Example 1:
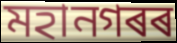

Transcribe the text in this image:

মহানগৰৰ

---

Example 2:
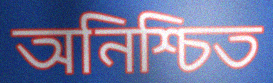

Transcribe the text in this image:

অনিশ্চিত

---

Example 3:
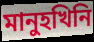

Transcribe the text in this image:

মানুহখিনি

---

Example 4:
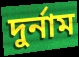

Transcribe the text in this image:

দুৰ্নাম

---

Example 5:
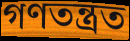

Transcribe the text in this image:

গণতন্ত্ৰত